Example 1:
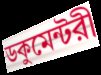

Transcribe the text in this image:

ডকুমেন্টরী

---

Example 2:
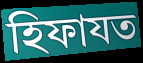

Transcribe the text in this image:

হিফাযত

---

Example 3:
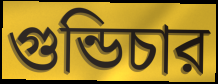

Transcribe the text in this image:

গুন্ডিচার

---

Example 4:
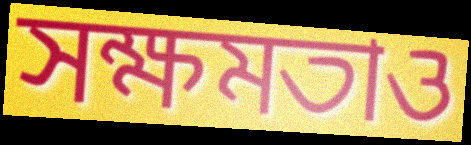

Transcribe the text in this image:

সক্ষমতাও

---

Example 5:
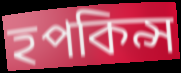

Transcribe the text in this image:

হপকিন্স